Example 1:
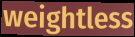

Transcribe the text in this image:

weightless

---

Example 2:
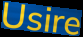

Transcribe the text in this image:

Usire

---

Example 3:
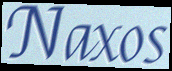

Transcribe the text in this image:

Naxos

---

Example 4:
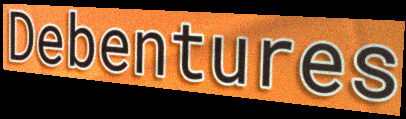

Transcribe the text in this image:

Debentures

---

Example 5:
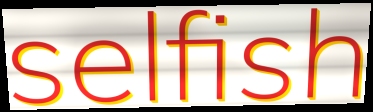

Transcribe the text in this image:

selfish